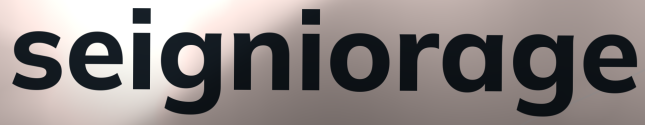
seigniorage